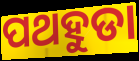
ପଥହୁଡା